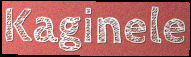
Kaginele